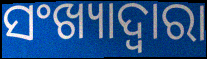
ସଂଖ୍ୟାଦ୍ଵାରା